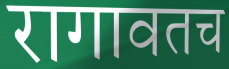
रागावतच